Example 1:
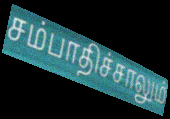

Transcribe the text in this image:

சம்பாதிச்சாலும்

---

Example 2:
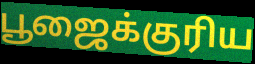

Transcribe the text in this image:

பூஜைக்குரிய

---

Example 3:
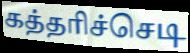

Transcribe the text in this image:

கத்தரிச்செடி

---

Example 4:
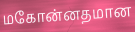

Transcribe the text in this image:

மகோன்னதமான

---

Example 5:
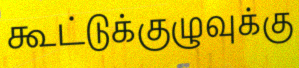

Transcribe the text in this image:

கூட்டுக்குழுவுக்கு